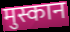
मुस्‍कान